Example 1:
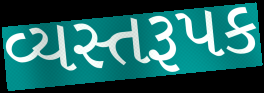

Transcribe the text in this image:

વ્યસ્તરૂપક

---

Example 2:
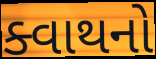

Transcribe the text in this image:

ક્વાથનો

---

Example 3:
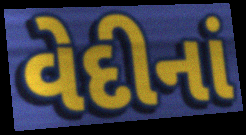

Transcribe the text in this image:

વેદીનાં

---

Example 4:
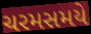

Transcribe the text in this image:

ચરમસમયે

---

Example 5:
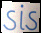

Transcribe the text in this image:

ડાંડ